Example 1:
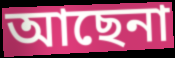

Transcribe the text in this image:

আছেনা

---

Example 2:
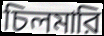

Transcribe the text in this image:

চিলমারি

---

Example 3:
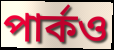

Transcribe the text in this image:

পার্কও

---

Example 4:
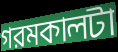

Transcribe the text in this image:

গরমকালটা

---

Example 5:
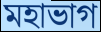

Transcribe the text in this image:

মহাভাগ